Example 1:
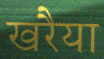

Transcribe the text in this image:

खरैया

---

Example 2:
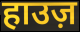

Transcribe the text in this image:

हाउज़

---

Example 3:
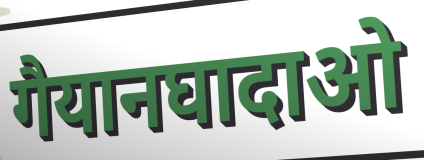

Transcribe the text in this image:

गैयानघादाओ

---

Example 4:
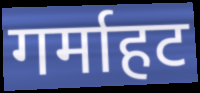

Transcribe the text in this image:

गर्माहट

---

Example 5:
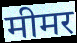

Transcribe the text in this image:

मीमर